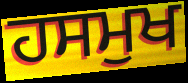
ਹਸਮੁਖ